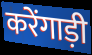
करेंगाड़ी